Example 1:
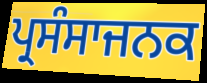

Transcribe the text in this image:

ਪ੍ਰਸੰਸਾਜਨਕ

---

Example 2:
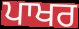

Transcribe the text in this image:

ਪਾਖਰ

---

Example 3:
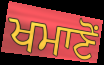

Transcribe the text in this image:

ਖਮਾਣੋਂ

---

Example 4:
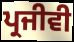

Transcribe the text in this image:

ਪ੍ਰਜੀਵੀ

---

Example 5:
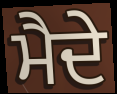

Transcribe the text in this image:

ਮੈਦੇ